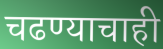
चढण्याचाही